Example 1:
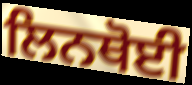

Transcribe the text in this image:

ਲਿਨਥੋਈ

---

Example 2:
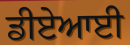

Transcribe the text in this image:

ਡੀਏਆਈ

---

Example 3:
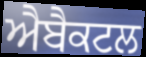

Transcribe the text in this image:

ਐਬੈਕਟਲ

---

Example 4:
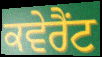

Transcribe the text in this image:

ਕਵੇਰੈਂਟ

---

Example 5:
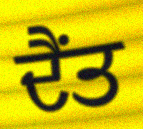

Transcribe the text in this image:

ਦੈਂਤ